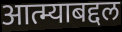
आत्म्याबद्दल